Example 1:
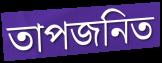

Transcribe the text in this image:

তাপজনিত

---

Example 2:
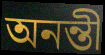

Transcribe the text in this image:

অনন্তী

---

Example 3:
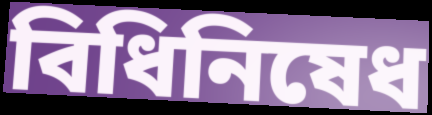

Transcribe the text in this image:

বিধিনিষেধ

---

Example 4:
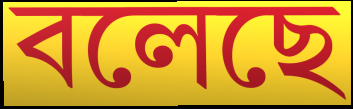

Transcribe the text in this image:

বলেছে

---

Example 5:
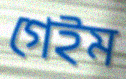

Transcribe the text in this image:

গেইম